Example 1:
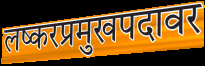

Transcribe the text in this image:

लष्करप्रमुखपदावर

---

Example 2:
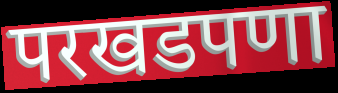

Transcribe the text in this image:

परखडपणा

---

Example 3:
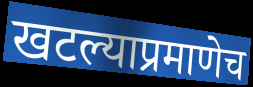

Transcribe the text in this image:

खटल्याप्रमाणेच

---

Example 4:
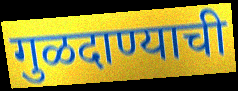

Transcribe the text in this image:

गुळदाण्याची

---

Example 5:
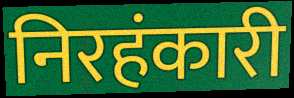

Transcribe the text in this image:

निरहंकारी